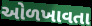
ઓળખાવતા